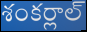
శంకర్లాల్